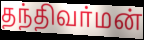
தந்திவர்மன்